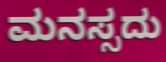
ಮನಸ್ಸದು